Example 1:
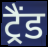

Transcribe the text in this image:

ट्रैंड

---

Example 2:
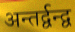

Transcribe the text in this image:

अन्तर्द्वन्द्व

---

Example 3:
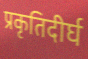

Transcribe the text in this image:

प्रकृतिदीर्घ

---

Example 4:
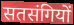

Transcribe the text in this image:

सतसंगियों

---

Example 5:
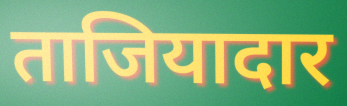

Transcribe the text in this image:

ताजियादार